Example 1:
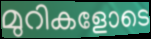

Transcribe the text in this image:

മുറികളോടെ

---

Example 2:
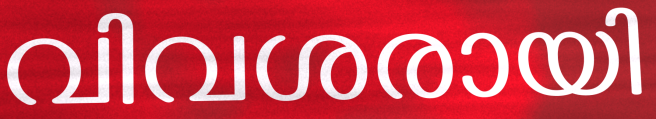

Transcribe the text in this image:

വിവശരായി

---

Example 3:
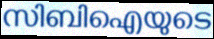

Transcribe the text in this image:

സിബിഐയുടെ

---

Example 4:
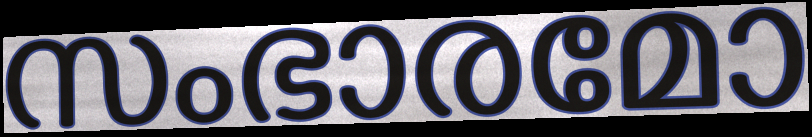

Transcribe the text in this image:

സംഭാരമോ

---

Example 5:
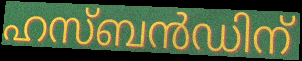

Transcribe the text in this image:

ഹസ്ബൻഡിന്